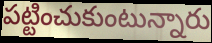
పట్టించుకుంటున్నారు